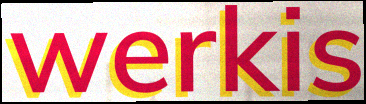
werkis